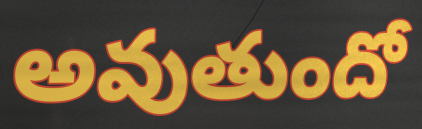
అవుతుందో